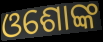
ଓଶୋଙ୍କ